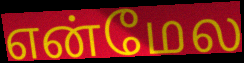
என்மேல